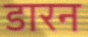
डारन